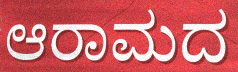
ಆರಾಮದ